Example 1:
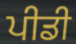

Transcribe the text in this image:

ਪੀਡੀ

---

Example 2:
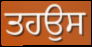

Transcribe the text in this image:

ਤਹਉਸ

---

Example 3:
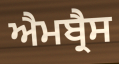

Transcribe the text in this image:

ਐਮਬ੍ਰੈਸ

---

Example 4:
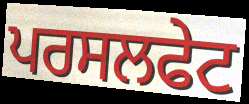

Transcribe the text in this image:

ਪਰਸਲਫੇਟ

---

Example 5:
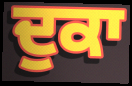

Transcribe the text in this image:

ਦੁਕਾ